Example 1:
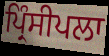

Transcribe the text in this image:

ਪ੍ਰਿੰਸੀਪਲਾ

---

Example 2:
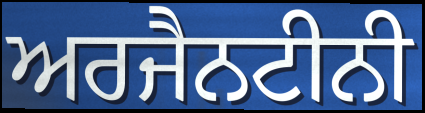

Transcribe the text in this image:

ਅਰਜੈਨਟੀਨੀ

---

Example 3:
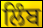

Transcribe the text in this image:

ਲਿੰਬ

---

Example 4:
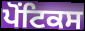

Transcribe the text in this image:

ਪੋਂਟਿਕਸ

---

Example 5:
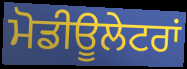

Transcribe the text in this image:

ਮੋਡੀਊਲੇਟਰਾਂ